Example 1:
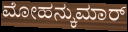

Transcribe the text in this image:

ಮೋಹನ್ಕುಮಾರ್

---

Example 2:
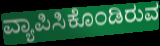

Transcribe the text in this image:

ವ್ಯಾಪಿಸಿಕೊಂಡಿರುವ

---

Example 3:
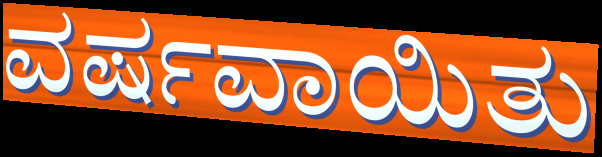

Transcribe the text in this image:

ವರ್ಷವಾಯಿತು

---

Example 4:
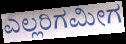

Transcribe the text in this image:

ಎಲ್ಲರಿಗಮೀಗ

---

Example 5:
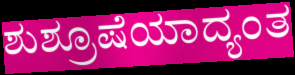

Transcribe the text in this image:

ಶುಶ್ರೂಷೆಯಾದ್ಯಂತ